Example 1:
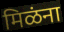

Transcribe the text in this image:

मिळंना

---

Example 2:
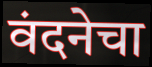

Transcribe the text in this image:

वंदनेचा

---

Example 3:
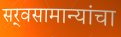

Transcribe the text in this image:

सर्वसामान्यांचा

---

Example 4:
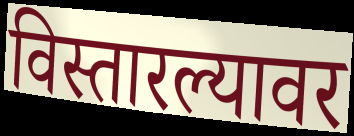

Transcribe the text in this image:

विस्तारल्यावर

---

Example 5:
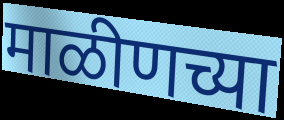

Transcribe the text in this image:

माळीणच्या